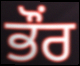
ਭੌਂਰ